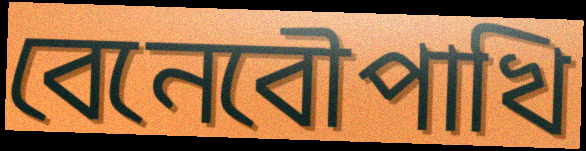
বেনেবৌপাখি